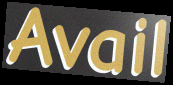
Avail